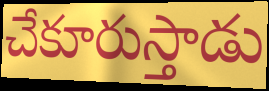
చేకూరుస్తాడు